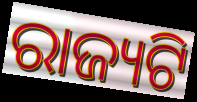
ରାଜ୍ୟଟି